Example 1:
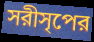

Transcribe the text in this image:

সরীসৃপের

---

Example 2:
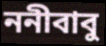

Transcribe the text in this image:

ননীবাবু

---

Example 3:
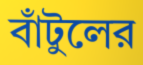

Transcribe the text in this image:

বাঁটুলের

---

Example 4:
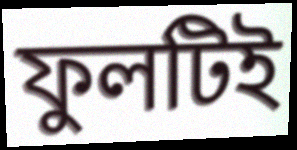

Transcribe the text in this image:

ফুলটিই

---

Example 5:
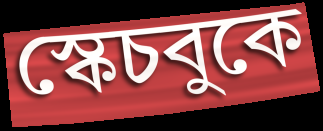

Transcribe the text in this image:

স্কেচবুকে